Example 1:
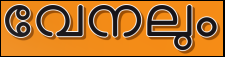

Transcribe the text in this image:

വേനലും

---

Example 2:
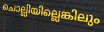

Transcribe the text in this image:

ചൊല്ലിയില്ലെങ്കിലും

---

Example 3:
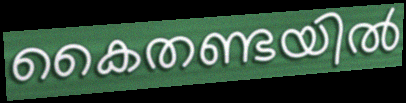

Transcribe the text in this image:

കൈതണ്ടയിൽ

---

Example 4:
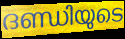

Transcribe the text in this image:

ദണ്ഡിയുടെ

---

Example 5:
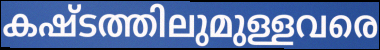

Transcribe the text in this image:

കഷ്ടത്തിലുമുള്ളവരെ